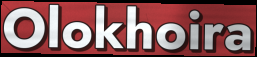
Olokhoira